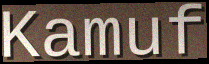
Kamuf